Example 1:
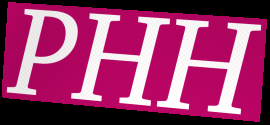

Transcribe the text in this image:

PHH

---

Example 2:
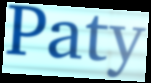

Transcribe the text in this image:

Paty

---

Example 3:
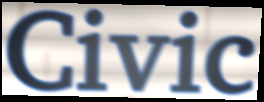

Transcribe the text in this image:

Civic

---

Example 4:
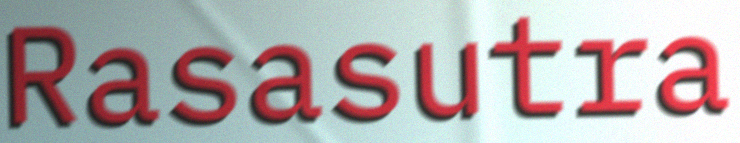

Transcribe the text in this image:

Rasasutra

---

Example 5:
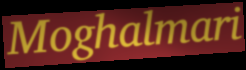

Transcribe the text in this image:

Moghalmari